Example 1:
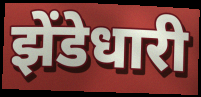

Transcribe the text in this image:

झेंडेधारी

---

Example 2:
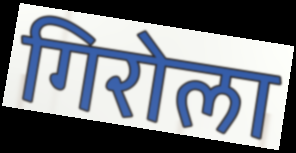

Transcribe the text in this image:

गिरोला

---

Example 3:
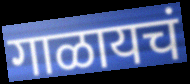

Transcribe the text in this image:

गाळायचं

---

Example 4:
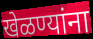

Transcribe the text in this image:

खेळण्यांना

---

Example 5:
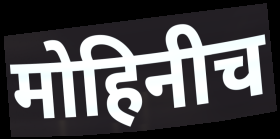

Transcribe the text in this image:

मोहिनीच